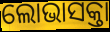
ଲୋଭାସକ୍ତା